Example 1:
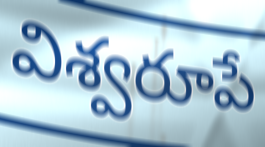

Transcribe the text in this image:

విశ్వరూపే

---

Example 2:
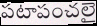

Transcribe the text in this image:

పటాపంచలై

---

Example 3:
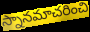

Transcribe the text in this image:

స్నానమాచరించి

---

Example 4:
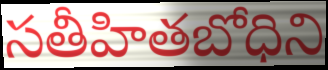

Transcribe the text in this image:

సతీహితబోధిని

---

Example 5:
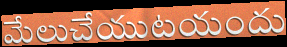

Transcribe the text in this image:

మేలుచేయుటయందు